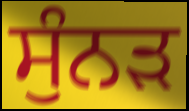
ਸੁੰਨੜ